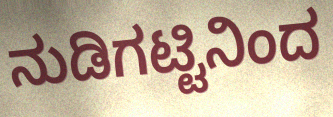
ನುಡಿಗಟ್ಟಿನಿಂದ